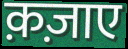
क़ज़ाए